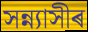
সন্ন্যাসীৰ